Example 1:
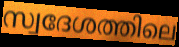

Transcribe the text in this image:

സ്വദേശത്തിലെ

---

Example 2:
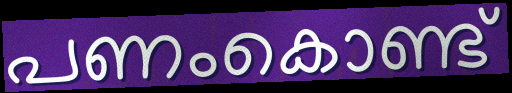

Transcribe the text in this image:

പണംകൊണ്ട്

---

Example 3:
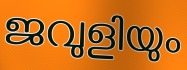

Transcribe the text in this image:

ജവുളിയും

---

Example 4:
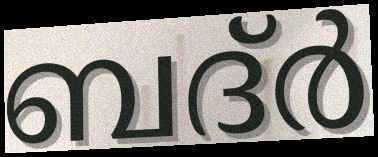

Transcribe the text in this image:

ബദ്ർ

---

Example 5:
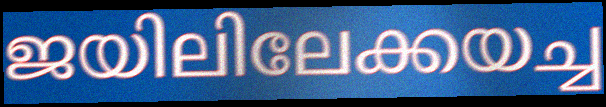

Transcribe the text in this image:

ജയിലിലേക്കയച്ച